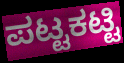
ಪಟ್ಟಕಟ್ಟಿ